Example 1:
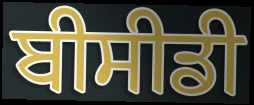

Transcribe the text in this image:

ਬੀਸੀਡੀ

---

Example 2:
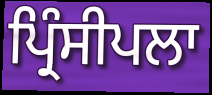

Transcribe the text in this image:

ਪ੍ਰਿੰਸੀਪਲਾ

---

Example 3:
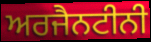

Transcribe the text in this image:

ਅਰਜੈਨਟੀਨੀ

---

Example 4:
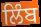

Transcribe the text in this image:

ਲਿੰਬ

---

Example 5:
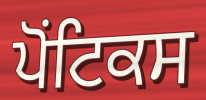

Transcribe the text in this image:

ਪੋਂਟਿਕਸ